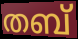
തബ്